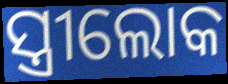
ସ୍ତ୍ରୀଲୋକ